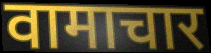
वामाचार